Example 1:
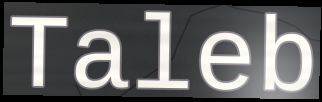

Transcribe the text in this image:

Taleb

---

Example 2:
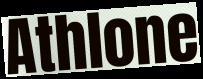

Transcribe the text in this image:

Athlone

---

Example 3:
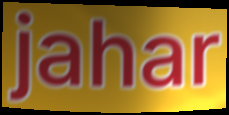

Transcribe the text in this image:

jahar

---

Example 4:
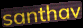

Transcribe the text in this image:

santhav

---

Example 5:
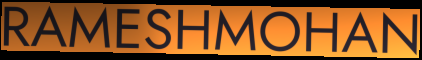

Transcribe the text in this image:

RAMESHMOHAN